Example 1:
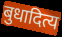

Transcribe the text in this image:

बुधादित्य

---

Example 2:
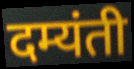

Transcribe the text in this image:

दम्यंती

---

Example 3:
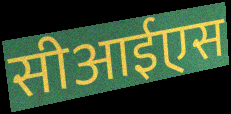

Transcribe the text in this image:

सीआईएस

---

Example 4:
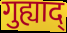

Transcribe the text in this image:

गुह्याद्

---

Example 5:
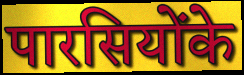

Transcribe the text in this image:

पारसियोंके